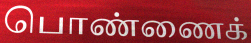
பொண்ணைக்